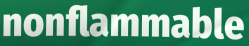
nonflammable